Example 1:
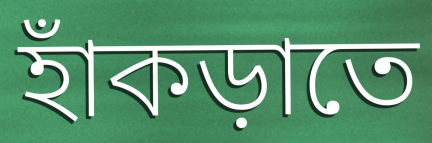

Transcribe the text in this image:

হাঁকড়াতে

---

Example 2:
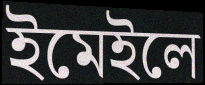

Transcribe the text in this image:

ইমেইলে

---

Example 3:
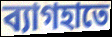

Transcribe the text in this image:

ব্যাগহাতে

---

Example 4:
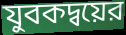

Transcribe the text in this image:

যুবকদ্বয়ের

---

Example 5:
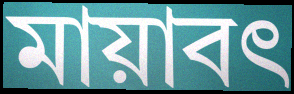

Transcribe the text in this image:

মায়াবৎ